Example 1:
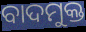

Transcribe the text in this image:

ବାଦମୁକ୍ତ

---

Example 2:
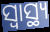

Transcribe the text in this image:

ସ୍ୱାସ୍ଥ୍ୟ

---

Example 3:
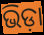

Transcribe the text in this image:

ଭିଡ଼ା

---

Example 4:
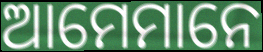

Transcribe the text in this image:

ଆମେମାନେ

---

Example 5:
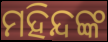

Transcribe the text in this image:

ମହିନ୍ଦଙ୍କ